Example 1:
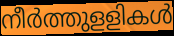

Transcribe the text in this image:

നീർത്തുളളികൾ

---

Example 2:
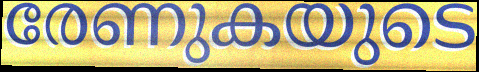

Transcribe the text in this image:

രേണുകയുടെ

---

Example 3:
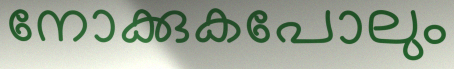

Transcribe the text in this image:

നോക്കുകപോലും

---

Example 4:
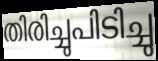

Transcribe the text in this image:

തിരിച്ചുപിടിച്ചു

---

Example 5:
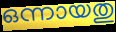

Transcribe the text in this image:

ഒന്നായതു